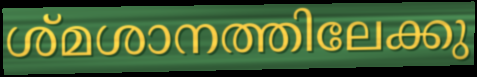
ശ്മശാനത്തിലേക്കു